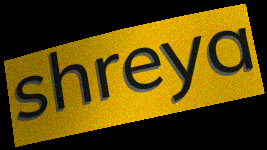
shreya